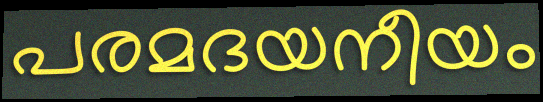
പരമദയനീയം